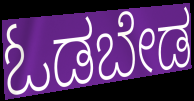
ಓಡಬೇಡ